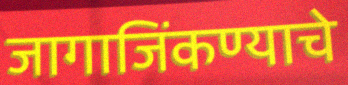
जागाजिंकण्याचे